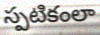
స్పటికంలా